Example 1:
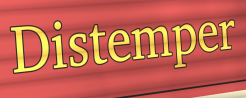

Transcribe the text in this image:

Distemper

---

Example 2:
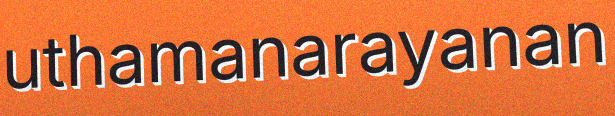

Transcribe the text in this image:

uthamanarayanan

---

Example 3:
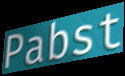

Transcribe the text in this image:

Pabst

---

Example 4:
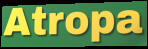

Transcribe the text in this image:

Atropa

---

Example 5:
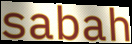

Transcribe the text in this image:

sabah